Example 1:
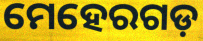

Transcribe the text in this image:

ମେହେରଗଡ଼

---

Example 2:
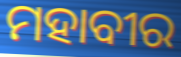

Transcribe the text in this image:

ମହାବୀର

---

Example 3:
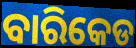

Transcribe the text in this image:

ବାରିକେଡ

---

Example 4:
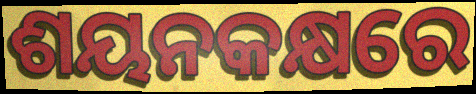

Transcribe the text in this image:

ଶୟନକକ୍ଷରେ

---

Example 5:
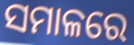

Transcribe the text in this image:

ସମାଳରେ